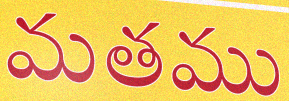
మతము